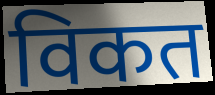
विकत